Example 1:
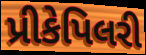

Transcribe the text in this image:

પ્રીકેપિલરી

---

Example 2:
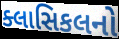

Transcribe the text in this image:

ક્લાસિકલનો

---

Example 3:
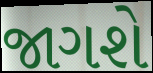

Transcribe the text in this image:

જાગશે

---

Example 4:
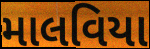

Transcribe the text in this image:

માલવિયા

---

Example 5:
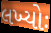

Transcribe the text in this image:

લખ્યોઃ